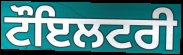
ਟੌਇਲਟਰੀ